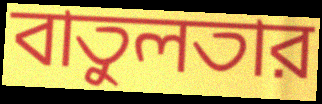
বাতুলতার